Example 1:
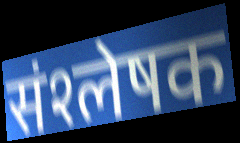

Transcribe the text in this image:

संश्लेषक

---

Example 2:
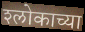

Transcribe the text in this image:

श्लोकाच्या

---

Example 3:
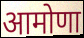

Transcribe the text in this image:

आमोणा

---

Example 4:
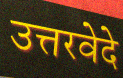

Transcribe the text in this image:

उत्तरवेदे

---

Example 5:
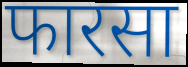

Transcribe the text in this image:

फारसा